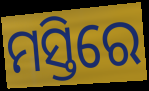
ମସ୍ତିରେ